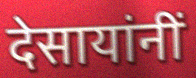
देसायांनीं